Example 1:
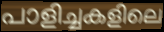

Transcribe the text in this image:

പാളിച്ചകളിലെ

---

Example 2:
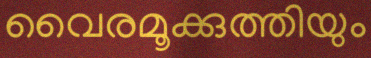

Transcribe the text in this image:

വൈരമൂക്കുത്തിയും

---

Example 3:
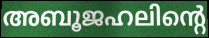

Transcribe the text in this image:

അബൂജഹലിന്റെ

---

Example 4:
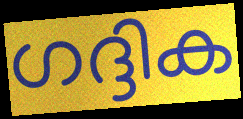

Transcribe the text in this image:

ഗദ്ദിക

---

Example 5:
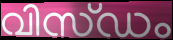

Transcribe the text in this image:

വിസ്ഡം